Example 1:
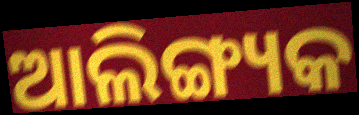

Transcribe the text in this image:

ଆଲିଙ୍ଗ୍ୟକ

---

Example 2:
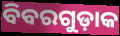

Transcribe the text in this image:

ବିବରଗୁଡ଼ାକ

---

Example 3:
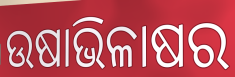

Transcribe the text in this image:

ଉଷାଭିଳାଷର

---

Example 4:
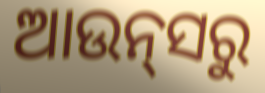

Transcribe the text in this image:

ଆଉନ୍‍ସରୁ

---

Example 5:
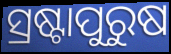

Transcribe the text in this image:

ସ୍ରଷ୍ଟାପୁରୁଷ